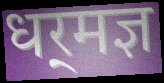
धर्मज्ञ